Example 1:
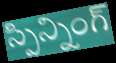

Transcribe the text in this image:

స్పిన్నింగ్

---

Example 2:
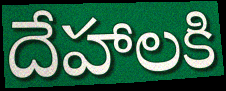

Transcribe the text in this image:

దేహాలకి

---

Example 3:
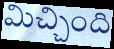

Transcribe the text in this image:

మిచ్చింది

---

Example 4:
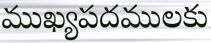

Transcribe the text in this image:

ముఖ్యపదములకు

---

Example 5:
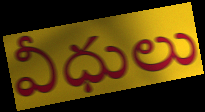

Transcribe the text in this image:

వీధులు